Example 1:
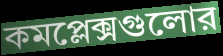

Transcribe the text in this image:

কমপ্লেক্সগুলোর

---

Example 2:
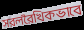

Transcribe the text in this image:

সরলরৈখিকভাবে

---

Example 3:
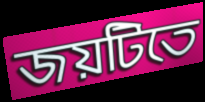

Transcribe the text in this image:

জয়টিতে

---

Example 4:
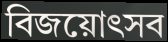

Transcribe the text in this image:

বিজয়োৎসব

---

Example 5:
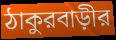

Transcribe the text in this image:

ঠাকুরবাড়ীর